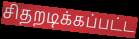
சிதறடிக்கப்பட்ட